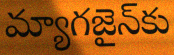
మ్యాగజైన్‌కు